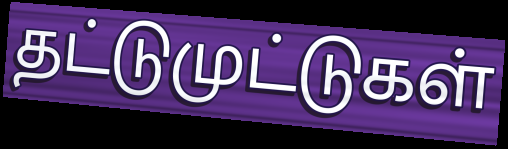
தட்டுமுட்டுகள்